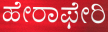
ಹೇರಾಫೇರಿ